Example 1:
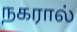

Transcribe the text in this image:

நகரால்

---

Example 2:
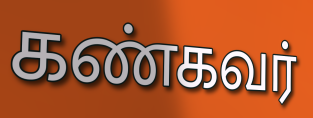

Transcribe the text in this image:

கண்கவர்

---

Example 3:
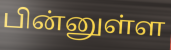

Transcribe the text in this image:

பின்னுள்ள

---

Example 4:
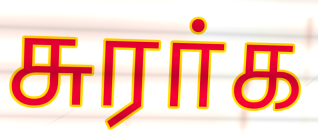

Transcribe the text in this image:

சுரர்க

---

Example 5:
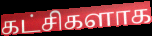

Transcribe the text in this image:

கட்சிகளாக